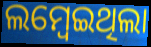
ଲମ୍ବେଇଥିଲା